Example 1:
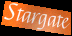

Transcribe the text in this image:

Stargate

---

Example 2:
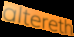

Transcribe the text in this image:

altereth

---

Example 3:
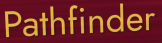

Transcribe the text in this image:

Pathfinder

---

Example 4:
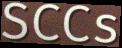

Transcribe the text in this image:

SCCs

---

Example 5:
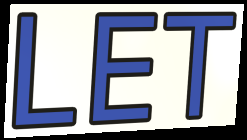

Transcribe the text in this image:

LET